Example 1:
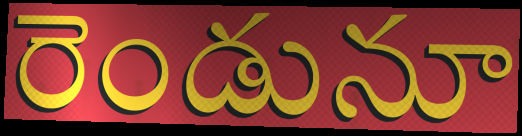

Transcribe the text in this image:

రెండునూ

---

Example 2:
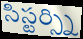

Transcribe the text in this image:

సిస్టర్స్ని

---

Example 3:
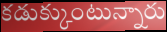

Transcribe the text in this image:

కడుక్కుంటున్నారు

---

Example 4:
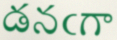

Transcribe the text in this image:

డనఁగా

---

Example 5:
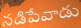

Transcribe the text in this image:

నడిపేవాడు